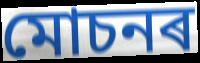
মোচনৰ